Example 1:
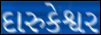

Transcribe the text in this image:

દારુકેશ્વર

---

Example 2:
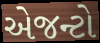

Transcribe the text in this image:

એજન્ટો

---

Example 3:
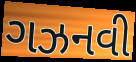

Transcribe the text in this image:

ગઝનવી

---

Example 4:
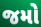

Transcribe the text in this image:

જમો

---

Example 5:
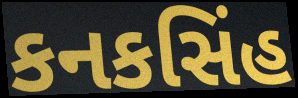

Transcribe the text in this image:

કનકસિંહ